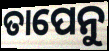
ତାପେନୁ